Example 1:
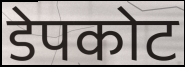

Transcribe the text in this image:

डेपकोट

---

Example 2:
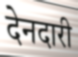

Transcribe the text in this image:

देनदारी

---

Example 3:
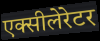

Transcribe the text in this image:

एक्सीलेरेटर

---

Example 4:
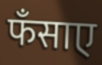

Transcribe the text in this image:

फँसाए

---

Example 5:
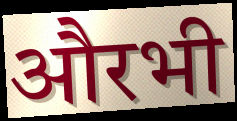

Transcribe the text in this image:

औरभी